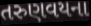
તરુણવયના